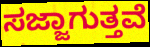
ಸಜ್ಜಾಗುತ್ತವೆ